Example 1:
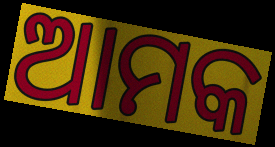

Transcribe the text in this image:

ଆମକ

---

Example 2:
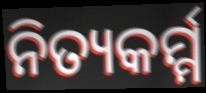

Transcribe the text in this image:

ନିତ୍ୟକର୍ମ୍ମ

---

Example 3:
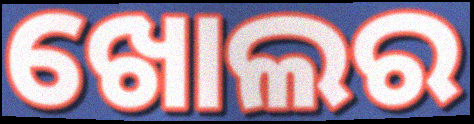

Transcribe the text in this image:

ଖୋଲର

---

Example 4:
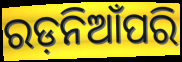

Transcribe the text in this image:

ରଡ଼ନିଆଁପରି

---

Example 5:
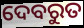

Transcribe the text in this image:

ଦେବରୁତ